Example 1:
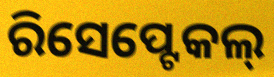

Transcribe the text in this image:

ରିସେପ୍ଟେକଲ୍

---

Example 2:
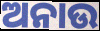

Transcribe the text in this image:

ଅନାଉ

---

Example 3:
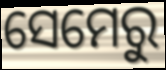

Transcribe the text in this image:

ସେମେରୁ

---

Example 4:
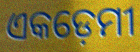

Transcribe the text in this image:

ଏକଡ଼େମୀ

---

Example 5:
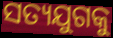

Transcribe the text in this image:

ସତ୍ୟଯୁଗକୁ